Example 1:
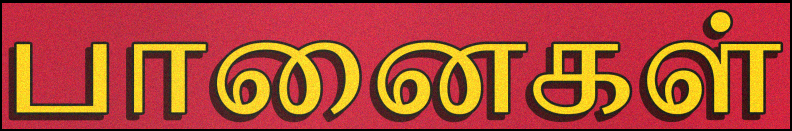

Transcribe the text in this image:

பானைகள்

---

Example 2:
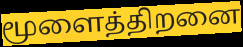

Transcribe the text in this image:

மூளைத்திறனை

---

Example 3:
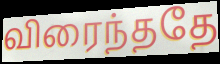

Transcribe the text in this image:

விரைந்ததே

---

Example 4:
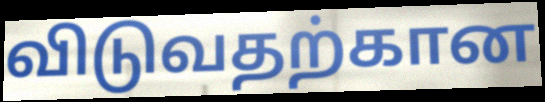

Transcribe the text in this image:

விடுவதற்கான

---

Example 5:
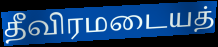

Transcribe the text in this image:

தீவிரமடையத்